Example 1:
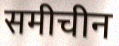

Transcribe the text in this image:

समीचीन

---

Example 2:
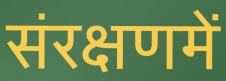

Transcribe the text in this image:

संरक्षणमें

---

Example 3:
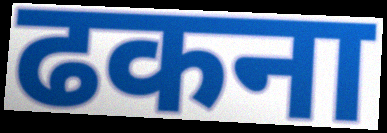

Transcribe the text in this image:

ढकना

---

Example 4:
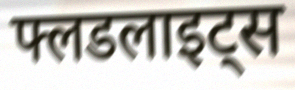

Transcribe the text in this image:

फ्लडलाइट्स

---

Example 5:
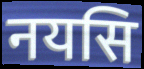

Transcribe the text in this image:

नयसि